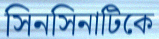
সিনসিনাটিকে